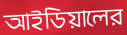
আইডিয়ালের